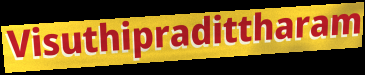
Visuthipradittharam